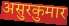
असुरकुमार